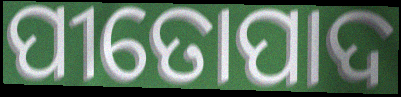
ପୀତୋପାଦ